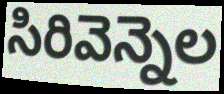
సిరివెన్నెల